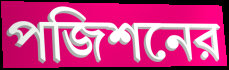
পজিশনের